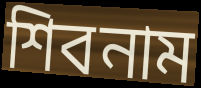
শিবনাম